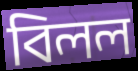
বিলল